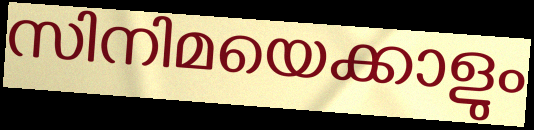
സിനിമയെക്കാളും